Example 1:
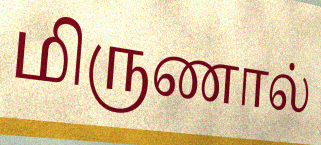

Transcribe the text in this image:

மிருணால்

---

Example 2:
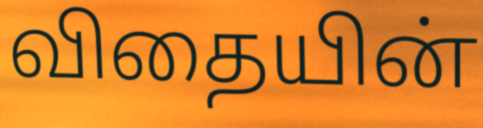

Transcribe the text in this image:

விதையின்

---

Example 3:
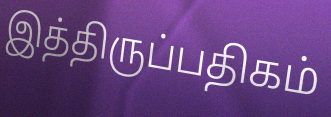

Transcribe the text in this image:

இத்திருப்பதிகம்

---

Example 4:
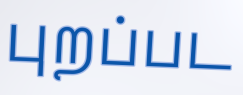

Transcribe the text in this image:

புறப்பட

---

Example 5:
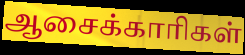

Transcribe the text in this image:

ஆசைக்காரிகள்